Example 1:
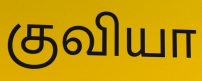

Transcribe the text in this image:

குவியா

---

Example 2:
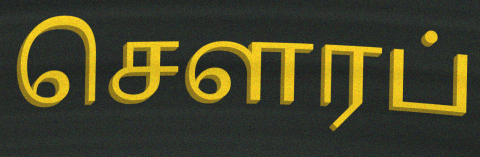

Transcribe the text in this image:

செளரப்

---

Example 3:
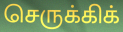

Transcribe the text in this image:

செருக்கிக்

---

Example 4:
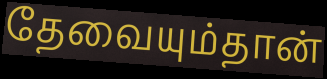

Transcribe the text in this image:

தேவையும்தான்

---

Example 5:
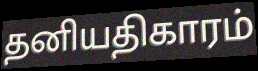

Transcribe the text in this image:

தனியதிகாரம்